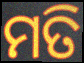
ମତି